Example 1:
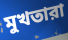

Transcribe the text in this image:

মুখতারা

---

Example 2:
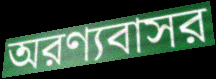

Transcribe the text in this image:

অরণ্যবাসর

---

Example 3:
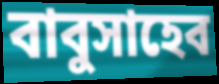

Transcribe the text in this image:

বাবুসাহেব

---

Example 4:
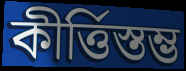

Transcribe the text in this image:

কীর্ত্তিস্তম্ভ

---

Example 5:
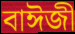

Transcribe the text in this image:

বাঈজী